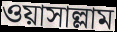
ওয়াসাল্লাম